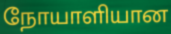
நோயாளியான